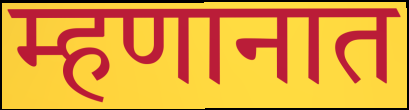
म्हणानात